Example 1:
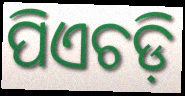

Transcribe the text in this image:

ପିଏଚଡ଼ି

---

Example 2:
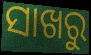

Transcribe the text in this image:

ସାଖରୁ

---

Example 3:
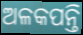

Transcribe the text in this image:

ଅଳକପନ୍ତି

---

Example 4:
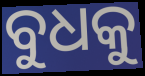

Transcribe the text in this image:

ବୁଧକୁ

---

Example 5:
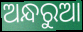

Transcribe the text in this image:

ଅନ୍ଧରୁଆ